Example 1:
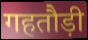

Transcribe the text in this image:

गहतौड़ी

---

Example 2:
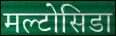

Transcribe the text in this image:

मल्टोसिडा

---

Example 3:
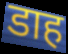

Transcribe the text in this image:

डाह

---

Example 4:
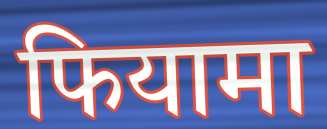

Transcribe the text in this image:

फियामा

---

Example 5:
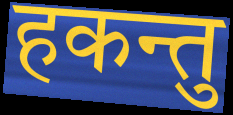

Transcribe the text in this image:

हकन्तु